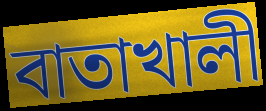
বাতাখালী